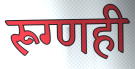
रूग्णही